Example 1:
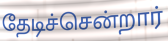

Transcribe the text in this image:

தேடிச்சென்றார்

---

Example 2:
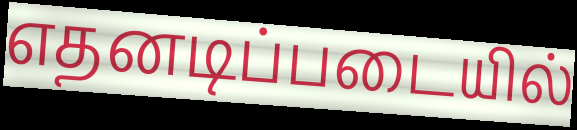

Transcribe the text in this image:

எதனடிப்படையில்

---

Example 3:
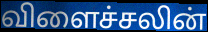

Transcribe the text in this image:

விளைச்சலின்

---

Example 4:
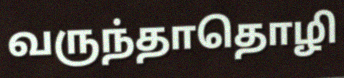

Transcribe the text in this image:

வருந்தாதொழி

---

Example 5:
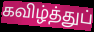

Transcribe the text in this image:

கவிழ்த்துப்